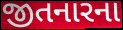
જીતનારના